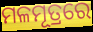
ମଳମୂତ୍ରରେ